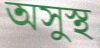
অসুস্থ